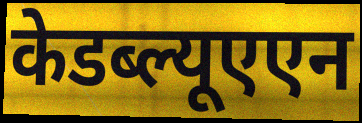
केडब्ल्यूएएन